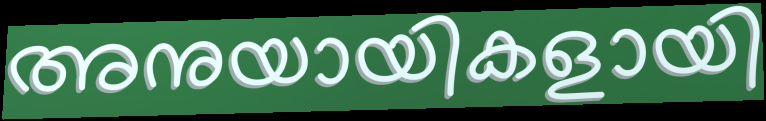
അനുയായികളായി